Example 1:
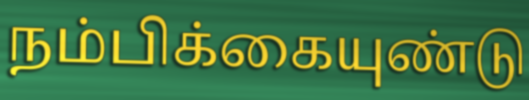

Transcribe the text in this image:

நம்பிக்கையுண்டு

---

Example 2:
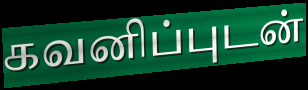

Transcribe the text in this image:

கவனிப்புடன்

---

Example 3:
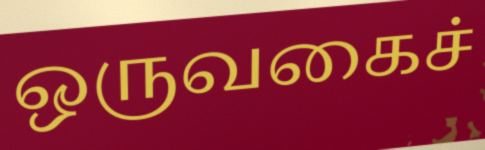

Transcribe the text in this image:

ஒருவகைச்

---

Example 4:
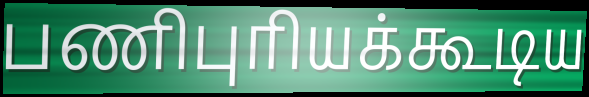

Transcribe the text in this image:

பணிபுரியக்கூடிய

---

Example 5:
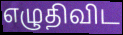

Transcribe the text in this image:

எழுதிவிட